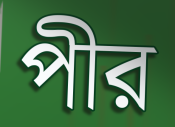
পীর